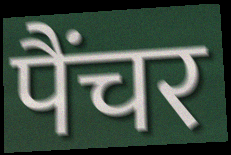
पैंचर